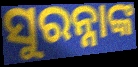
ସୁରନ୍ନାଙ୍କ